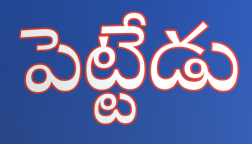
పెట్టేడు